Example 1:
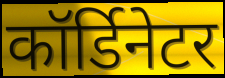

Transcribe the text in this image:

कॉर्डिनेटर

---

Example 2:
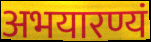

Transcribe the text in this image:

अभयारण्यं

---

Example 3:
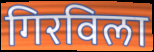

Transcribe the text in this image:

गिरविला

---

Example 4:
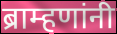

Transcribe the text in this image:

ब्राम्हणांनी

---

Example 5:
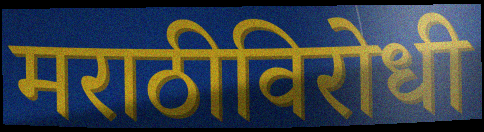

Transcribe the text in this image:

मराठीविरोधी